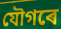
যৌগৰে